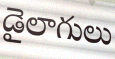
డైలాగులు